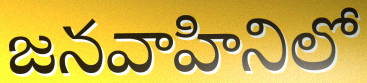
జనవాహినిలో